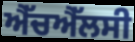
ਐੱਚਐੱਲਸੀ